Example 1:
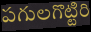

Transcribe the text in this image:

పగులగొట్టిరి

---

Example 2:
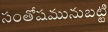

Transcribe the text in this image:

సంతోషమునుబట్టి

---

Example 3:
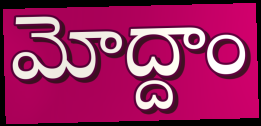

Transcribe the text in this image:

మోద్దాం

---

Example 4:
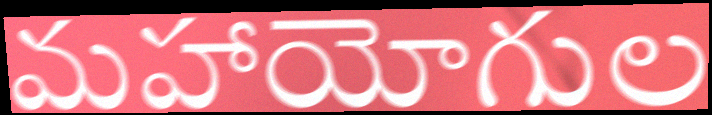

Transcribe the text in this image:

మహాయోగుల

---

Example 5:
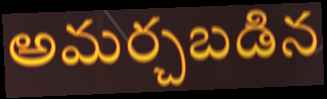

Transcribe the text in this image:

అమర్చబడిన